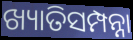
ଖ୍ୟାତିସମ୍ପନ୍ନା